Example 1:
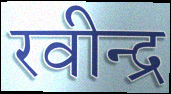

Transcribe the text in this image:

रवीन्द्र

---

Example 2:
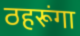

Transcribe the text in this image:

ठहरूंगा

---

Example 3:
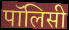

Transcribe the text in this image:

पॉलिसी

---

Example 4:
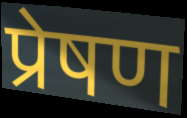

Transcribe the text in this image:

प्रेषण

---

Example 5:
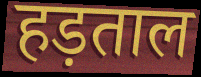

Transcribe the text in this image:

हड़ताल